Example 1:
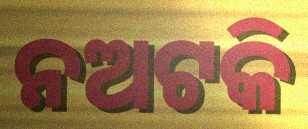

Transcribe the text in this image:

ନଅଟକି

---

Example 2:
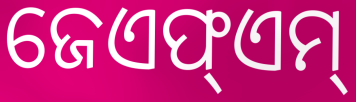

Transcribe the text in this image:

ଜେଏଫ୍ଏମ୍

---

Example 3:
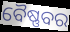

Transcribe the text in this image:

ବୈଷ୍ଣବର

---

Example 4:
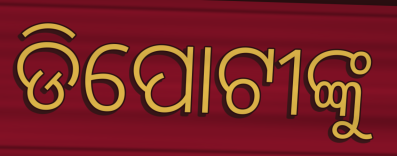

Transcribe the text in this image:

ଡିପୋଟୀଙ୍କୁ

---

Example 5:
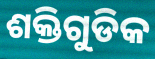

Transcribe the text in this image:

ଶକ୍ତିଗୁଡିକ